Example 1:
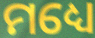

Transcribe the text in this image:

ମଧ୍ୟେ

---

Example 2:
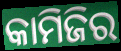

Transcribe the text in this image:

କାମିଜିର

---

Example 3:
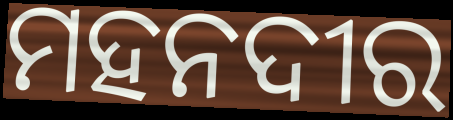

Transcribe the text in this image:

ମହନଦୀର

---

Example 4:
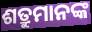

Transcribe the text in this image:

ଶତ୍ରୁମାନଙ୍କ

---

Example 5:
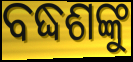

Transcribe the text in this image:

ବଦ୍ଧଶଙ୍କୁ